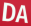
DA